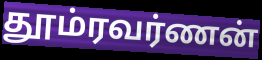
தூம்ரவர்ணன்